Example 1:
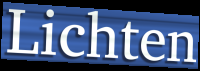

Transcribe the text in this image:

Lichten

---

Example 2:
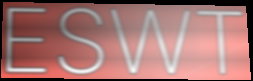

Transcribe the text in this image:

ESWT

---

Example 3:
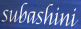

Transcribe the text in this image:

subashini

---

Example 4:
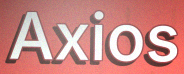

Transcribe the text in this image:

Axios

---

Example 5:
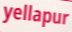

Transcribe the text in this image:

yellapur